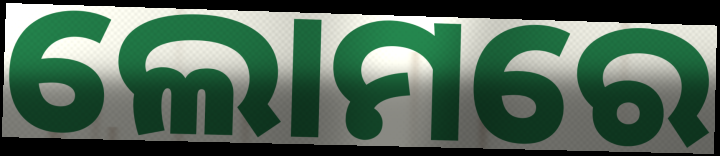
ଲୋମରେ